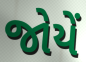
જોયેં